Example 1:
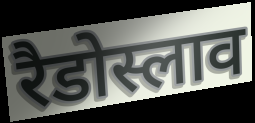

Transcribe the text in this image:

रैडोस्लाव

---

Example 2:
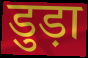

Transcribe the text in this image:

डुड़ा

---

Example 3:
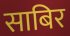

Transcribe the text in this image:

साबिर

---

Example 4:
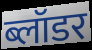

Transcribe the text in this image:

ब्लॉडर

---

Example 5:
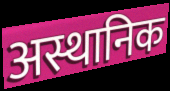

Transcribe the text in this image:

अस्थानिक